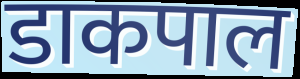
डाकपाल